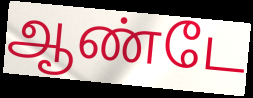
ஆண்டே